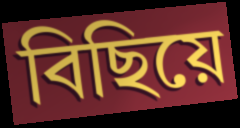
বিছিয়ে